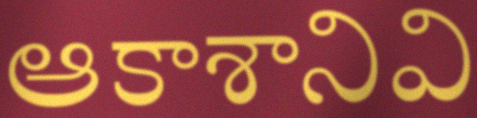
ఆకాశానివి